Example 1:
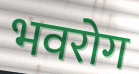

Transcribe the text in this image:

भवरोग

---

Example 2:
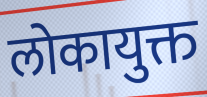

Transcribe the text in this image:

लोकायुक्त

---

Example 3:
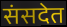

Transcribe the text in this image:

संसदेत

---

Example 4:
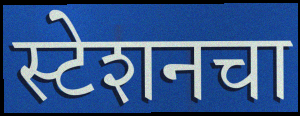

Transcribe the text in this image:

स्टेशनचा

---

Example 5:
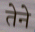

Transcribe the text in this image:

तेने